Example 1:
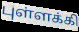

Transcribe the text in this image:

புள்ளக்கி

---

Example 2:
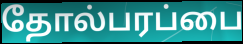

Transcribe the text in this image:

தோல்பரப்பை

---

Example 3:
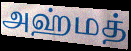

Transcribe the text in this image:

அஹ்மத்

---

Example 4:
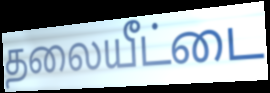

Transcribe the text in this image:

தலையீட்டை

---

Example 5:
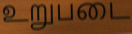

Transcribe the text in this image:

உறுபடை